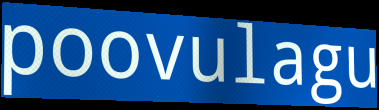
poovulagu